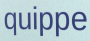
quippe